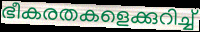
ഭീകരതകളെക്കുറിച്ച്